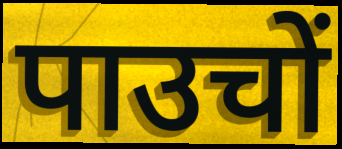
पाउचों